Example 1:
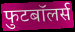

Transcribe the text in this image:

फुटबॉलर्स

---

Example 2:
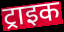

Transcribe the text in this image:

ट्राइक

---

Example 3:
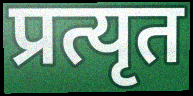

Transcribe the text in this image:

प्रत्यृत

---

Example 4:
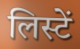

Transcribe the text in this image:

लिस्टें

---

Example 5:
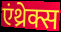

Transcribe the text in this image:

एंथ्रेक्स